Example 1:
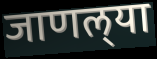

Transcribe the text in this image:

जाणल्या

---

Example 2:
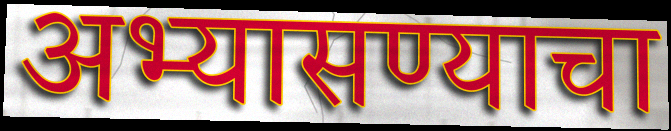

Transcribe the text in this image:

अभ्यासण्याचा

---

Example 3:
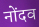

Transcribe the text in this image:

नोंदव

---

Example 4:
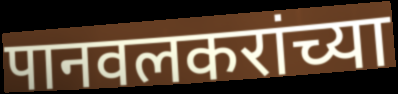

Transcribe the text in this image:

पानवलकरांच्या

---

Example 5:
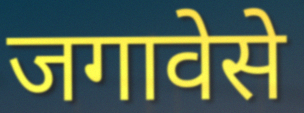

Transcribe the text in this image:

जगावेसे